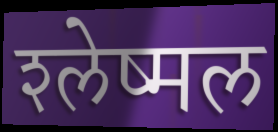
श्लेष्मल